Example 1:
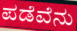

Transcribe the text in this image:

ಪಡೆವೆನು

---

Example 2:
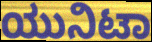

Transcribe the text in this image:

ಯುನಿಟಾ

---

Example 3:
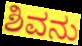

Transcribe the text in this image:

ಶಿವನು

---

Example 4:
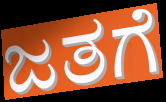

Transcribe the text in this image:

ಜತಗೆ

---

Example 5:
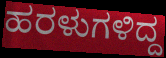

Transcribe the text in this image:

ಹರಳುಗಳಿದ್ದ